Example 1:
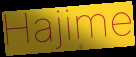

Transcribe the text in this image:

Hajime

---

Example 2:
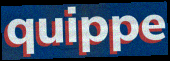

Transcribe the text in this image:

quippe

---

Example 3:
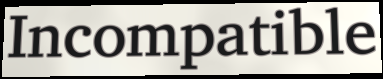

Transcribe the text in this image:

Incompatible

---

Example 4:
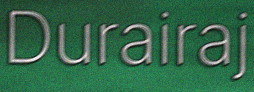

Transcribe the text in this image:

Durairaj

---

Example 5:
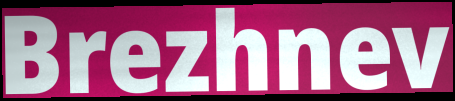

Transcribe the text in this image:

Brezhnev